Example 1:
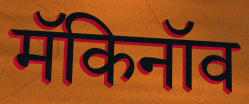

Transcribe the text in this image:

मॅकिनॉव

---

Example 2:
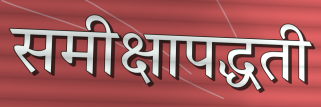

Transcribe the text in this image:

समीक्षापद्धती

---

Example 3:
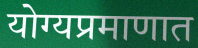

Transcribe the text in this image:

योग्यप्रमाणात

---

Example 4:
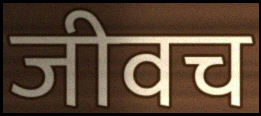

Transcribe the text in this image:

जीवच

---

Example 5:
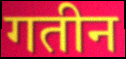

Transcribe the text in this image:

गतीन